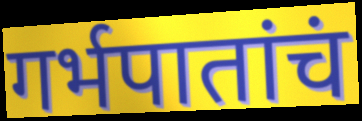
गर्भपातांचं